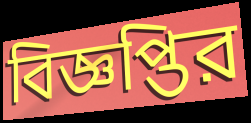
বিজ্ঞপ্তির